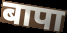
बापा